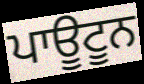
ਪਾਊਟੂਨ